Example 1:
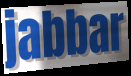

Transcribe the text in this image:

jabbar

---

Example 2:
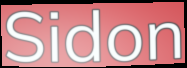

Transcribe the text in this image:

Sidon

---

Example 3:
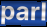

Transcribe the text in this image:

parl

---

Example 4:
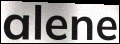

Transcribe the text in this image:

alene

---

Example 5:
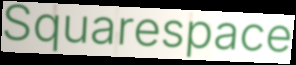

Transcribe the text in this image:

Squarespace